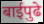
बाईपुढे